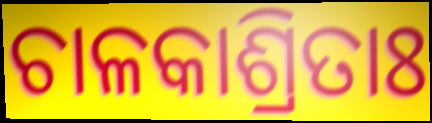
ଚାଳକାଶ୍ରିତାଃ